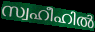
സ്വഹീഹിൽ